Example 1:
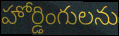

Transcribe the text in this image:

హోర్డింగులను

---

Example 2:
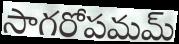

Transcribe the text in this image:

సాగరోపమమ్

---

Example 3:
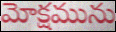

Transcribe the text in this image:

మోక్షమును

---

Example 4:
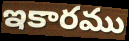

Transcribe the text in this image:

ఇకారము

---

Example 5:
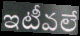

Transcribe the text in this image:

ఇటీవలే